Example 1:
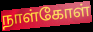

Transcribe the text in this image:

நாள்கோள்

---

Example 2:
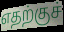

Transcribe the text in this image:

எதற்குச்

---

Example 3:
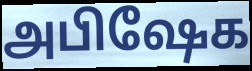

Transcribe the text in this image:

அபிஷேக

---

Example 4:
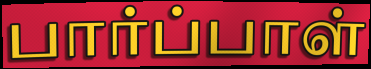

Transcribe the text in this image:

பார்ப்பாள்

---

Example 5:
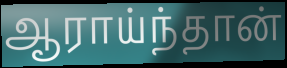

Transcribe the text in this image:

ஆராய்ந்தான்